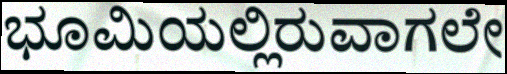
ಭೂಮಿಯಲ್ಲಿರುವಾಗಲೇ